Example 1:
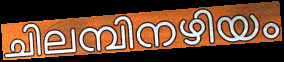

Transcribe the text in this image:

ചിലമ്പിനഴിയം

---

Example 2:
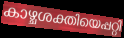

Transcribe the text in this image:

കാഴ്ചശക്തിയെപ്പറ്റി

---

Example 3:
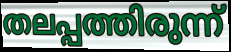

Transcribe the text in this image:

തലപ്പത്തിരുന്ന്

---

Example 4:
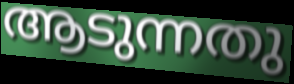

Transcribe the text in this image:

ആടുന്നതു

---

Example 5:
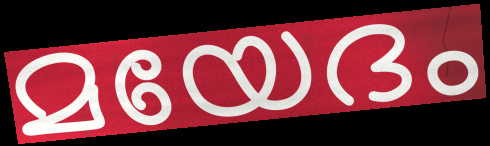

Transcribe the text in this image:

മയേദം